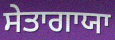
ਸੇਤਾਗਾਯਾ